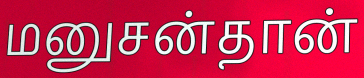
மனுசன்தான்